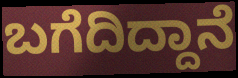
ಬಗೆದಿದ್ದಾನೆ